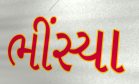
ભીંસ્યા